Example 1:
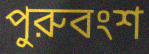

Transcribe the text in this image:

পুরুবংশ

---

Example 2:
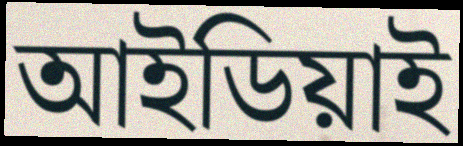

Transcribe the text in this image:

আইডিয়াই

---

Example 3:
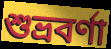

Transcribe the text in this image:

শুভ্রবর্ণা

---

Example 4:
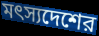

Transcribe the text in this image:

মৎস্যদেশের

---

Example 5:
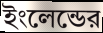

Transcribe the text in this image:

ইংলেন্ডের